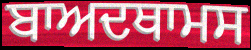
ਬਾਅਦਥਾਮਸ